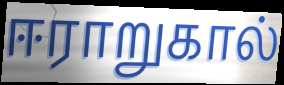
ஈராறுகால்